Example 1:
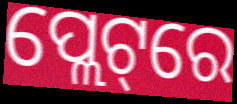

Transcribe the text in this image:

ପ୍ଲେଟ୍‌ରେ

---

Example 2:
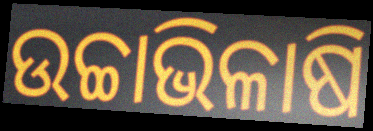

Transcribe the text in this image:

ଉଚ୍ଚାଭିଳାଷି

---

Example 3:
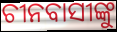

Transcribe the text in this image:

ଚୀନବାସୀଙ୍କୁ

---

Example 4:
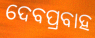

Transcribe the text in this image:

ଦେବପ୍ରବାହ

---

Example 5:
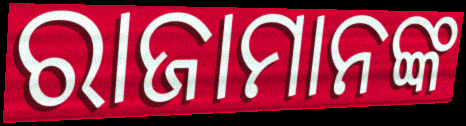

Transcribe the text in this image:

ରାଜାମାନଙ୍କ